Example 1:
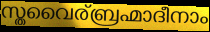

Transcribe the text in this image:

സ്തവൈര്ബ്രഹ്മാദീനാം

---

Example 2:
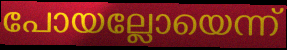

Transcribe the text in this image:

പോയല്ലോയെന്ന്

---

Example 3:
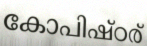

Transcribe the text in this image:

കോപിഷ്ഠര്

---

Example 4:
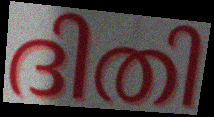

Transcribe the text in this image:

ദിതി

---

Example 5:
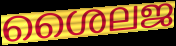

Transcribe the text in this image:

ശൈലജ